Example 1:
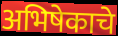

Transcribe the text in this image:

अभिषेकाचे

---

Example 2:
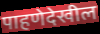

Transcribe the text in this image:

पाहणेदेखील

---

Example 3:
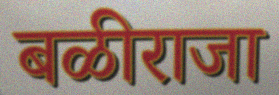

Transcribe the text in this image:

बळीराजा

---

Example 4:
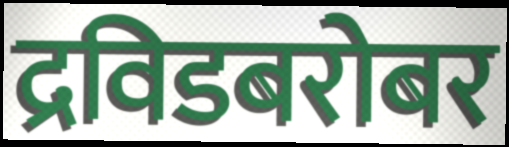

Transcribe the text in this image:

द्रविडबरोबर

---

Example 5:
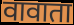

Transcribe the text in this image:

वावाता